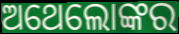
ଅଥେଲୋଙ୍କର